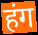
हंग